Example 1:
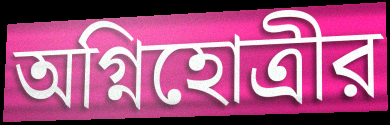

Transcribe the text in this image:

অগ্নিহোত্রীর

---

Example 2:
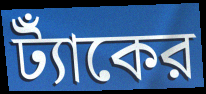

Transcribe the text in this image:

ট্যাঁকের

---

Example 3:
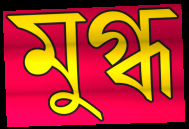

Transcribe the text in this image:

মুগ্ধ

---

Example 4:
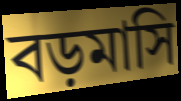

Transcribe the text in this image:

বড়মাসি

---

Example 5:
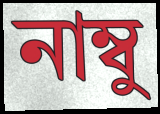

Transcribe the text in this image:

নাম্বু